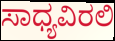
ಸಾಧ್ಯವಿರಲಿ